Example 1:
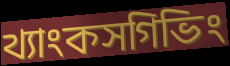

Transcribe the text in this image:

থ্যাংকসগিভিং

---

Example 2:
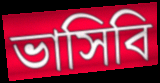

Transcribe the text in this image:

ভাসিবি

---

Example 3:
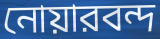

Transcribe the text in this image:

নোয়ারবন্দ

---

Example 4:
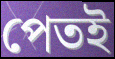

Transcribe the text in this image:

পেতই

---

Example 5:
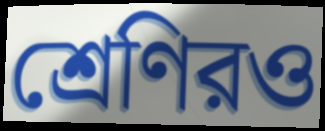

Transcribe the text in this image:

শ্রেণিরও